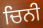
ਚਿਨੀ